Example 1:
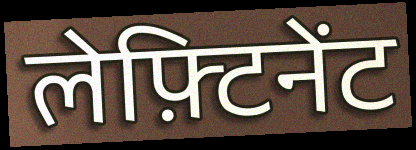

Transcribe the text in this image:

लेफ़्टिनेंट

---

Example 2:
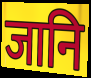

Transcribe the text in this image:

जानि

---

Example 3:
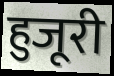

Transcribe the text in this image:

हुजूरी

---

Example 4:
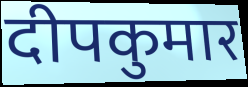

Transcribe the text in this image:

दीपकुमार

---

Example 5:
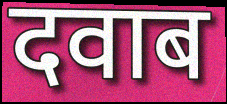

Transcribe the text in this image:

दवाब